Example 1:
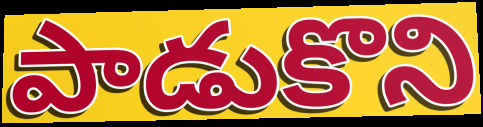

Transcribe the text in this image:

పాడుకొని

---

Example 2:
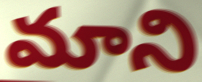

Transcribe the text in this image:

మాని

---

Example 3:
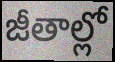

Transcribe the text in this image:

జీతాల్లో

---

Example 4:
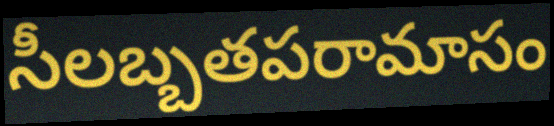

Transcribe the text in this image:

సీలబ్బతపరామాసం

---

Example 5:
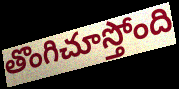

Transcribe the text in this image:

తొంగిచూస్తోంది